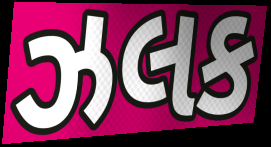
ઝલક